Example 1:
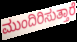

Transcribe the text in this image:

ಮುಂದಿರಿಸುತ್ತಾರೆ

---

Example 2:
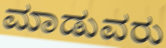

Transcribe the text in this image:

ಮಾಡುವರು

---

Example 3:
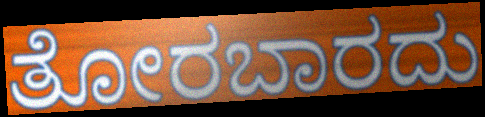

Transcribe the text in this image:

ತೋರಬಾರದು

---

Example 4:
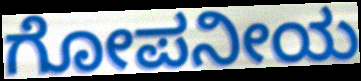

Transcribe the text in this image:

ಗೋಪನೀಯ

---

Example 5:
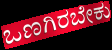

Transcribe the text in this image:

ಒಣಗಿರಬೇಕು